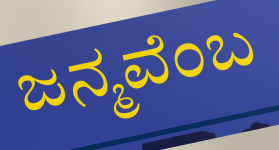
ಜನ್ಮವೆಂಬ